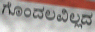
ಗೊಂದಲವಿಲ್ಲದ